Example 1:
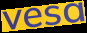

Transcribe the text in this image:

vesa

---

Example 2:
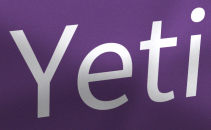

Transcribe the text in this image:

Yeti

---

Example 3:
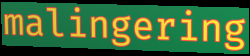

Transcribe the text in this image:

malingering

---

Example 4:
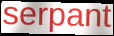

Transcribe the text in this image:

serpant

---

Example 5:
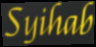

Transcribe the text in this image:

Syihab